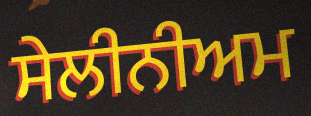
ਸੇਲੀਨੀਅਮ